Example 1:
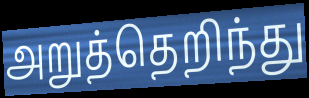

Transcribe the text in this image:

அறுத்தெறிந்து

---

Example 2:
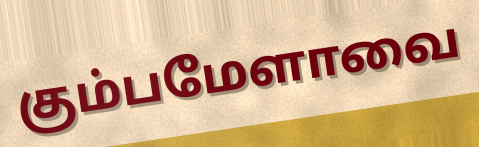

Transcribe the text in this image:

கும்பமேளாவை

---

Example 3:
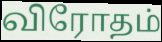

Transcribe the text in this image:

விரோதம்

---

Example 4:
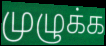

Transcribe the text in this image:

முழுக்க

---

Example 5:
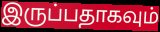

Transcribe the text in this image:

இருப்பதாகவும்